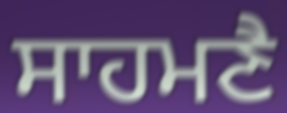
ਸਾਹਮਣੈ